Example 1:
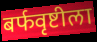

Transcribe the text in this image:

बर्फवृष्टीला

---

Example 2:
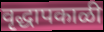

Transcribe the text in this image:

वृद्धापकाळी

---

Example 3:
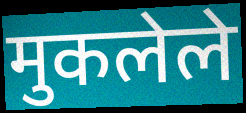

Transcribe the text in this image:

मुकलेले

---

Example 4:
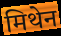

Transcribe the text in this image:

मिथेन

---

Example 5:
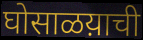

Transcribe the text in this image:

घोसाळय़ाची